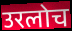
उरलोच